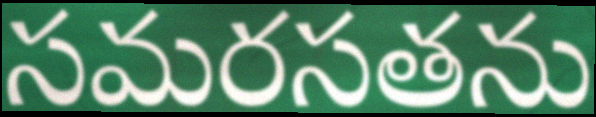
సమరసతను